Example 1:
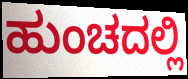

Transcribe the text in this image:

ಹುಂಚದಲ್ಲಿ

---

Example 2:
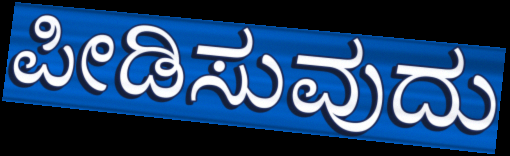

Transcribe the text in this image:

ಪೀಡಿಸುವುದು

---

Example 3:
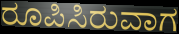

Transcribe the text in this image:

ರೂಪಿಸಿರುವಾಗ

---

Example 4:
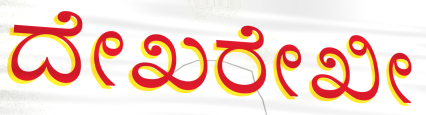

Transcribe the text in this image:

ದೇಖರೇಖೀ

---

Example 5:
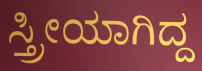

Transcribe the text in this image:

ಸ್ತ್ರೀಯಾಗಿದ್ದ